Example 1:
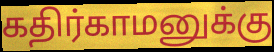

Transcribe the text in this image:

கதிர்காமனுக்கு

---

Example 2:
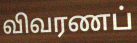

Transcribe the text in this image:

விவரணப்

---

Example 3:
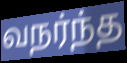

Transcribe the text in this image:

வநர்ந்த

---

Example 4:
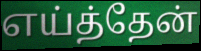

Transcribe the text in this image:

எய்த்தேன்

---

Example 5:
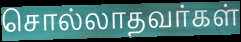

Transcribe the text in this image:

சொல்லாதவர்கள்